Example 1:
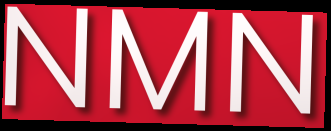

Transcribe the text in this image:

NMN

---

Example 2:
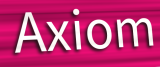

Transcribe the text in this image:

Axiom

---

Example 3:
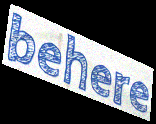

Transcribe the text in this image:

behere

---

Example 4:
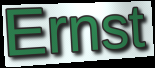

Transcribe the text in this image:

Ernst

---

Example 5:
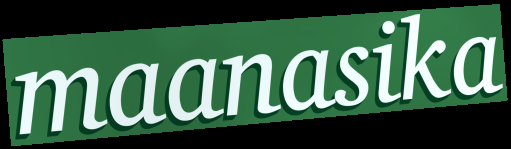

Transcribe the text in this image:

maanasika